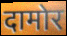
दामोर